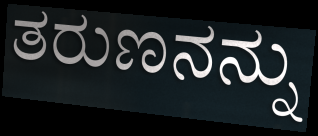
ತರುಣನನ್ನು